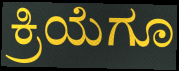
ಕ್ರಿಯೆಗೂ